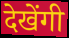
देखेंगी